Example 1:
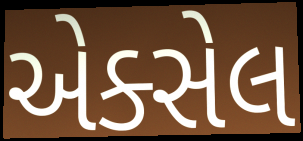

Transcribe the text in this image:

એક્સેલ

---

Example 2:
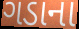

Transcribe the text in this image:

ગડાના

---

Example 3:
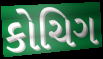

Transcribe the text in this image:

કોચિગ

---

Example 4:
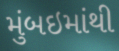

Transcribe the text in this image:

મુંબઇમાંથી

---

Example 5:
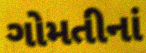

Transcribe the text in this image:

ગોમતીનાં